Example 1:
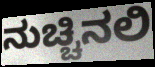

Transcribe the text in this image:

ನುಚ್ಚಿನಲಿ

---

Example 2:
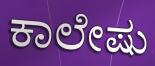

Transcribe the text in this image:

ಕಾಲೇಷು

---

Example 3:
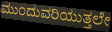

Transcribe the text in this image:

ಮುಂದುವರಿಯುತ್ತಲೇ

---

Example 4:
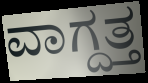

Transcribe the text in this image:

ವಾಗ್ದತ್ತ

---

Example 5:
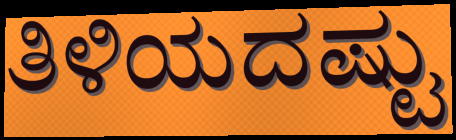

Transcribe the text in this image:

ತಿಳಿಯದಷ್ಟು